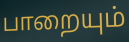
பாறையும்